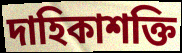
দাহিকাশক্তি